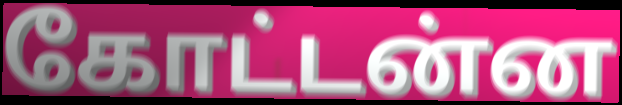
கோட்டன்ன